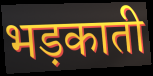
भड़काती